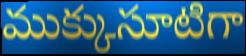
ముక్కుసూటిగా